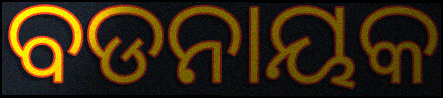
ବଡନାୟକ